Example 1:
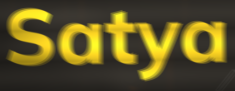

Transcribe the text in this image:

Satya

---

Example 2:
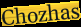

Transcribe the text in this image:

Chozhas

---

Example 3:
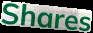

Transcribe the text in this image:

Shares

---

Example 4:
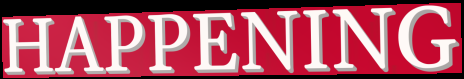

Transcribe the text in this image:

HAPPENING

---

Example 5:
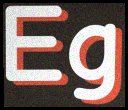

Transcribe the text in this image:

Eg